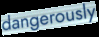
dangerously